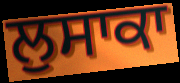
ਲੁਸਾਕਾ